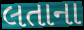
લતાના